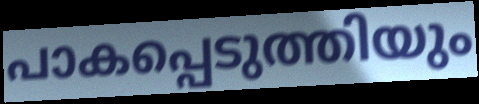
പാകപ്പെടുത്തിയും